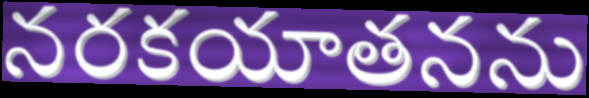
నరకయాతనను